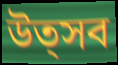
উত্সব